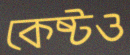
কেষ্টও